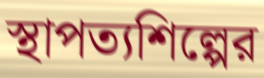
স্থাপত্যশিল্পের